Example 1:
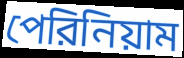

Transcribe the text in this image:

পেরিনিয়াম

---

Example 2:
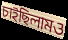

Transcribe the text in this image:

চাইছিলামও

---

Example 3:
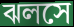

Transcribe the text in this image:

ঝলসে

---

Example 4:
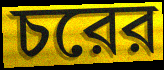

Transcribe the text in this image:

চরের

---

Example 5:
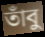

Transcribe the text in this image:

তাঁবু